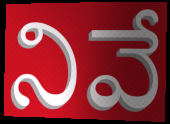
నివే